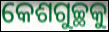
କେଶଗୁଚ୍ଛକୁ